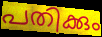
പതിക്കും